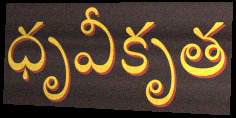
ధృవీకృత